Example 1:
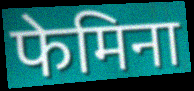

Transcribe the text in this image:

फेमिना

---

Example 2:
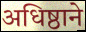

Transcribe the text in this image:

अधिष्ठाने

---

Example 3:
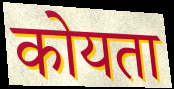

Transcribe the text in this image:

कोयता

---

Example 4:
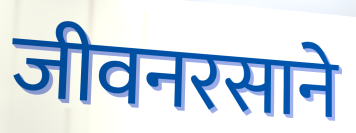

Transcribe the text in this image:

जीवनरसाने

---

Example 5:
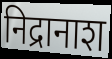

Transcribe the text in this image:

निद्रानाश